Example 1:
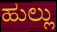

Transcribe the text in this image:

ಹುಲ್ಲು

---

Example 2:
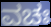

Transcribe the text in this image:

ವಚಃ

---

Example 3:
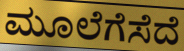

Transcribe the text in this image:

ಮೂಲೆಗೆಸೆದೆ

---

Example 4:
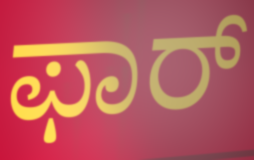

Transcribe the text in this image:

ಫಾರ್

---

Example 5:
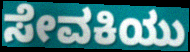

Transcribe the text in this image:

ಸೇವಕಿಯು